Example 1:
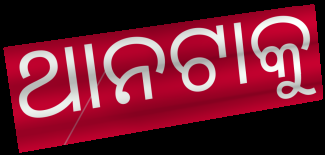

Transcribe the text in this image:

ଥାନଟାକୁ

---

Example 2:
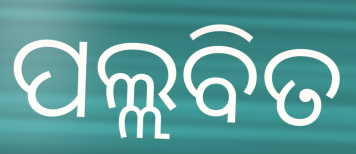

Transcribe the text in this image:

ପଲ୍ଲବିତ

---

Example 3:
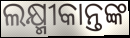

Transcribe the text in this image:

ଲକ୍ଷ୍ମୀକାନ୍ତଙ୍କ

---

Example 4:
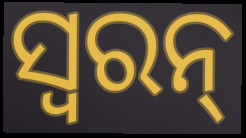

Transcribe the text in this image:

ସ୍ୱରନ୍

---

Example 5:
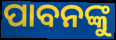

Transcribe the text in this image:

ପାବନଙ୍କୁ